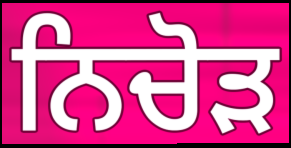
ਨਿਚੋਡ਼